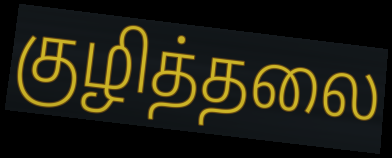
குழித்தலை